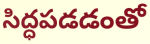
సిద్ధపడడంతో